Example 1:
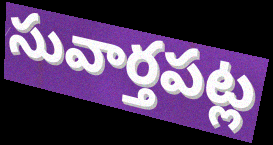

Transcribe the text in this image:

సువార్తపట్ల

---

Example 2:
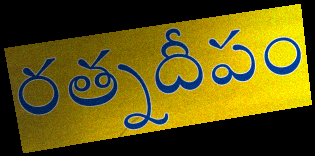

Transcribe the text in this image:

రత్నదీపం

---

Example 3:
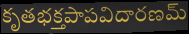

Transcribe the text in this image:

కృతభక్తపాపవిదారణమ్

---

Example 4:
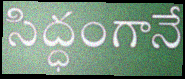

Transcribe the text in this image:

సిద్ధంగానే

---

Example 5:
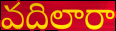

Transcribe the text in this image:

వదిలారా